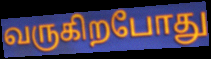
வருகிறபோது